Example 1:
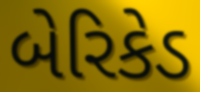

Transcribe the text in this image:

બેરિકેડ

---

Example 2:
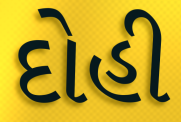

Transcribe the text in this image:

દોહી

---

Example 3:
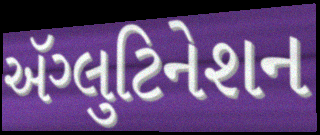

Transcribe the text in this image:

ઍગ્લુટિનેશન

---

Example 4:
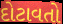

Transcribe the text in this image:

દોટાવતો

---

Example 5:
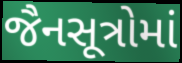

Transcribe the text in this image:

જૈનસૂત્રોમાં